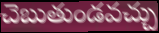
చెబుతుండవచ్చు